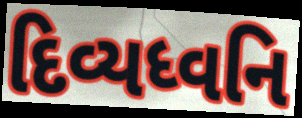
દિવ્યધ્વનિ